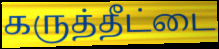
கருத்தீட்டை